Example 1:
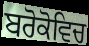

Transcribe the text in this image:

ਬਰੋਕੋਵਿਚ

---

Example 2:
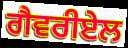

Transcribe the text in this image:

ਗੈਵਰੀਏਲ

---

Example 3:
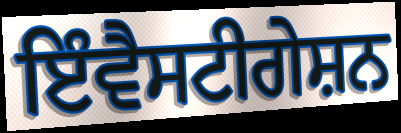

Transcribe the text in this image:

ਇੰਵੈਸਟੀਗੇਸ਼ਨ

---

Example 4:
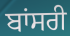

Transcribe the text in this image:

ਬਾਂਸਰੀ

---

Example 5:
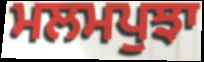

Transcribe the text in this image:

ਮਲਮਪੁਝਾ